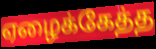
ஏழைக்கேத்த